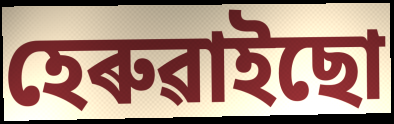
হেৰুৱাইছো